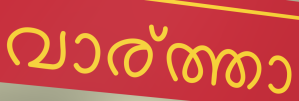
വാര്ത്താ